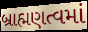
બ્રાહ્મણત્વમાં